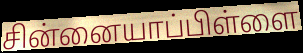
சின்னையாப்பிள்ளை